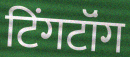
टिंगटॉंग